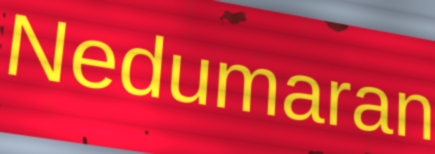
Nedumaran